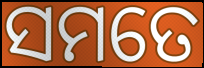
ସମତେ